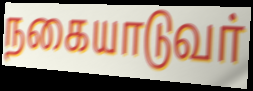
நகையாடுவர்